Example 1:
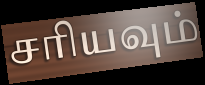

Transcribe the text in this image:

சரியவும்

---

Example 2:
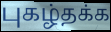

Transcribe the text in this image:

புகழ்தக்க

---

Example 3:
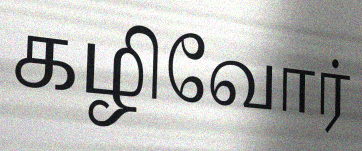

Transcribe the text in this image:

கழிவோர்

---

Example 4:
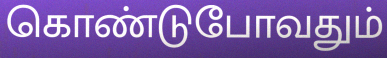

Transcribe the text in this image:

கொண்டுபோவதும்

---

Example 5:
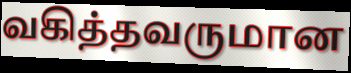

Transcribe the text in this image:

வகித்தவருமான